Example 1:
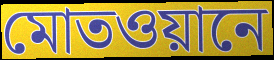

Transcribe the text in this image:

মোতওয়ানে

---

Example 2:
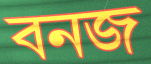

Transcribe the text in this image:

বনজ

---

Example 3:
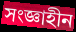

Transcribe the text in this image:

সংজ্ঞাহীন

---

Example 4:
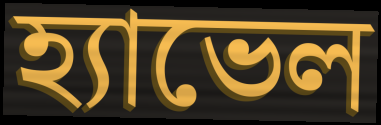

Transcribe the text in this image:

হ্যাভেল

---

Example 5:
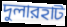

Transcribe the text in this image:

দুলারহাট